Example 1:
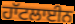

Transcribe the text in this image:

ਹਾੱਟਲਾਈਨ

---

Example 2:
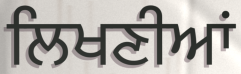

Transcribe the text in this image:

ਲਿਖਣੀਆਂ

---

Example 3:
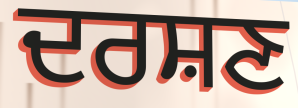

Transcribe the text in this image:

ਦਰਸ਼ਣ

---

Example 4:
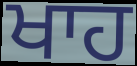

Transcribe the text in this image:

ਖਾਹ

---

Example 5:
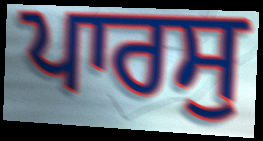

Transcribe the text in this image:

ਪਾਰਸੁ